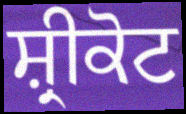
ਸ਼੍ਰੀਕੋਟ